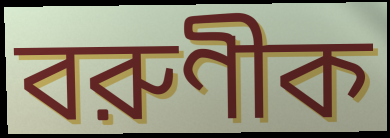
বৰুণীক